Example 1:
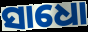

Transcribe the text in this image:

ସାଧୋ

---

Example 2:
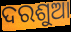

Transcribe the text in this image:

ଦରଶୁଆ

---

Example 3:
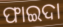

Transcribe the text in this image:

ଫାଇଦା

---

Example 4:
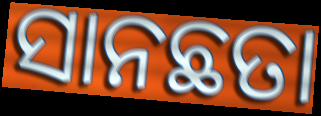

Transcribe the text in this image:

ସାନଛତା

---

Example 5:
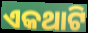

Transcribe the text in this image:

ଏକଥାଟି